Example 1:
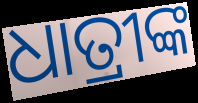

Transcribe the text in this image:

ଧାତ୍ରୀଙ୍କ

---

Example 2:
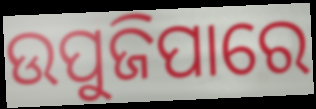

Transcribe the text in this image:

ଉପୁଜିପାରେ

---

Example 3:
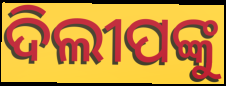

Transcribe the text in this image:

ଦିଲୀପଙ୍କୁ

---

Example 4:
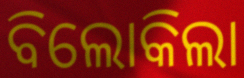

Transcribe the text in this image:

ବିଲୋକିଲା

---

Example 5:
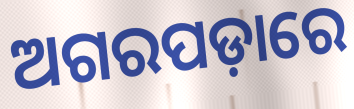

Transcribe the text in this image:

ଅଗରପଡ଼ାରେ